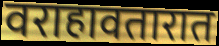
वराहावतारात